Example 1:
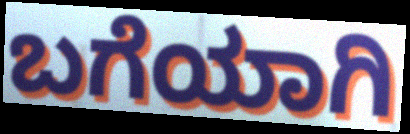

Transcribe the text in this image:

ಬಗೆಯಾಗಿ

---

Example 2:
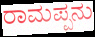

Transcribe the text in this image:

ರಾಮಪ್ಪನು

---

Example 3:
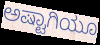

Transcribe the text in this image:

ಅಷ್ಟಾಗಿಯೂ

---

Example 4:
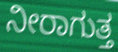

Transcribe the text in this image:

ನೀರಾಗುತ್ತ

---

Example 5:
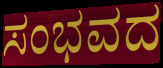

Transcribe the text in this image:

ಸಂಭವದ